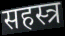
सहस्‍त्र